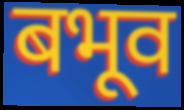
बभूव